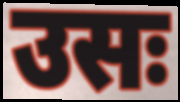
उसः